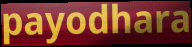
payodhara